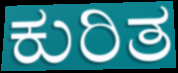
ಕುರಿತ